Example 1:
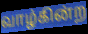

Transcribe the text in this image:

வாழ்கின்ற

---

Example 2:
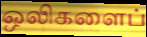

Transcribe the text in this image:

ஒலிகளைப்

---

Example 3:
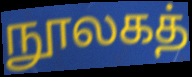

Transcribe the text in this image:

நூலகத்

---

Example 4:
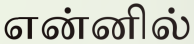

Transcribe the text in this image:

என்னில்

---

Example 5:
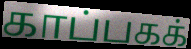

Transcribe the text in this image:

காப்பகக்